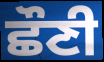
ਛੌਣੀ